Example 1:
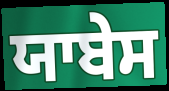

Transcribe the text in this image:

ਯਾਬੇਸ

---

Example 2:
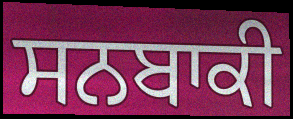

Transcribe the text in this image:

ਸਨਬਾਕੀ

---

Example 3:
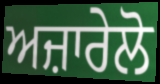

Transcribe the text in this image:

ਅਜ਼ਾਰੇਲੋ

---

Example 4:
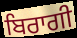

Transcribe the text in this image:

ਬਿਰਾਗੀ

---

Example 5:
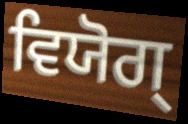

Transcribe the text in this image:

ਵਿਯੋਗ੍